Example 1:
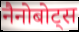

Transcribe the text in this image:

नैनोबोट्स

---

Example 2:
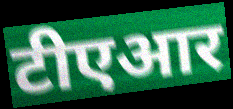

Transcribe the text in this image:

टीएआर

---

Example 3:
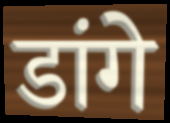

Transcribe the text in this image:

डांगे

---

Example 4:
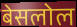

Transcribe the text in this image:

बेसलोल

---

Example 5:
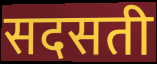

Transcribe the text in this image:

सदसती